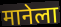
मानेला